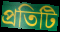
প্রতিটি